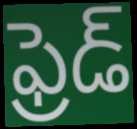
ఫ్రెడ్